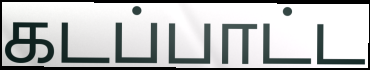
கடப்பாட்ட